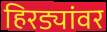
हिरड्यांवर